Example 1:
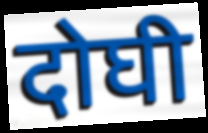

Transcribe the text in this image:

दोघी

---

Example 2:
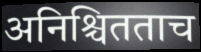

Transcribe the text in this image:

अनिश्चितताच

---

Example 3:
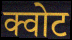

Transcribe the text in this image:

क्वोट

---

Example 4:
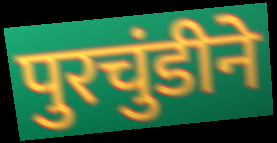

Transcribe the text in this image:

पुरचुंडीने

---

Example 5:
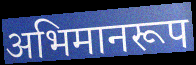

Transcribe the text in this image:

अभिमानरूप